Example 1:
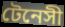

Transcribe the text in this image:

টেনেসী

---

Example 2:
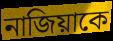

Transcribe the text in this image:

নাজিয়াকে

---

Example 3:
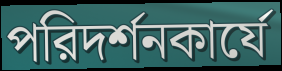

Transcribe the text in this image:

পরিদর্শনকার্যে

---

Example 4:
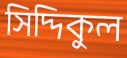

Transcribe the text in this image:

সিদ্দিকুল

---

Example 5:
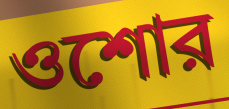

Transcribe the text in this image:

ওশোর